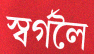
স্বৰ্গলৈ